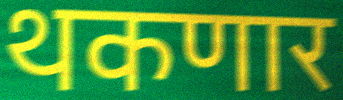
थकणार